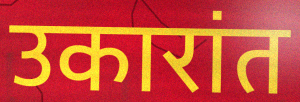
उकारांत